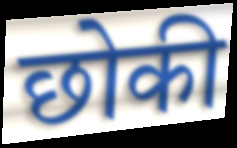
छोकी